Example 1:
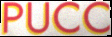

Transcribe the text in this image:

PUCC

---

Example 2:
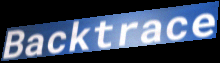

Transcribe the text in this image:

Backtrace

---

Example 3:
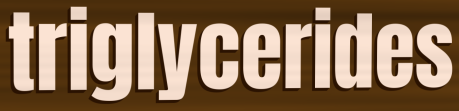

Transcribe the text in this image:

triglycerides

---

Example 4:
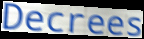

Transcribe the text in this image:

Decrees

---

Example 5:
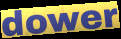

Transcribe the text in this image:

dower